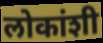
लोकांशी